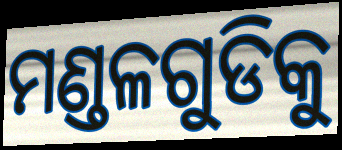
ମଣ୍ଡଳଗୁଡିକୁ